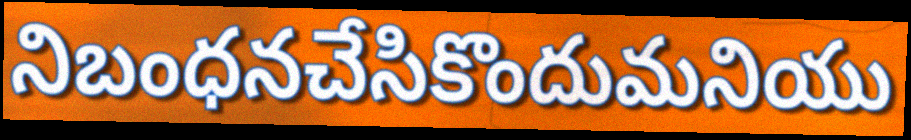
నిబంధనచేసికొందుమనియు